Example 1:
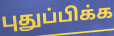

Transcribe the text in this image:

புதுப்பிக்க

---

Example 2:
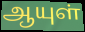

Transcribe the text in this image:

ஆயுள்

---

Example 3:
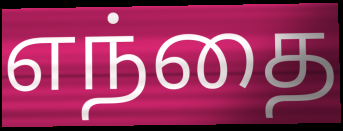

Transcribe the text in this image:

எந்தை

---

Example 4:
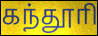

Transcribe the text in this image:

கந்தூரி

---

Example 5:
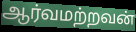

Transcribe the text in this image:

ஆர்வமற்றவன்